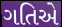
ગતિએ